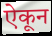
ऐकून